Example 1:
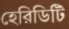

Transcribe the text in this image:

হেরিডিটি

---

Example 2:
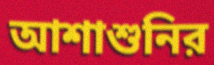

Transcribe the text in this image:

আশাশুনির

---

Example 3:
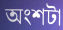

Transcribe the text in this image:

অংশটা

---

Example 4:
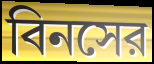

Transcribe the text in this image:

বিনসের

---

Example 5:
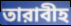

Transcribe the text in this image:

তারাবীহ